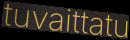
tuvaittatu